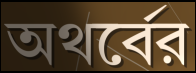
অথর্বের